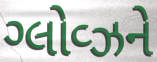
ગ્લોવ્ઝને